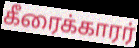
கீரைக்காரர்